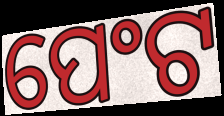
ପେଂଟ